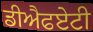
ਡੀਐਫਏਟੀ